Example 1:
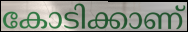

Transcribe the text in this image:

കോടിക്കാണ്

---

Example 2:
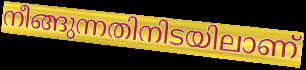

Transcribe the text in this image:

നീങ്ങുന്നതിനിടയിലാണ്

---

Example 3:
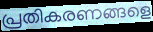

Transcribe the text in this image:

പ്രതികരണങ്ങളെ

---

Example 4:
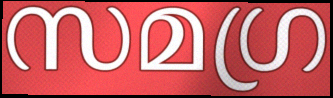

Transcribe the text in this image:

സമഗ്ര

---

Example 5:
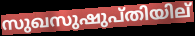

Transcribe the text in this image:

സുഖസുഷുപ്തിയില്